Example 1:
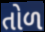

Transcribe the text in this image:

તોળ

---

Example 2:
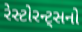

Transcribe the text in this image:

રેસ્ટોરન્ટ્સનો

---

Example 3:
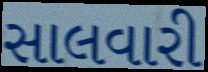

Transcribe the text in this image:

સાલવારી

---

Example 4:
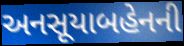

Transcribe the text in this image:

અનસૂયાબહેનની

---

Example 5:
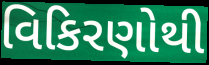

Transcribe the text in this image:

વિકિરણોથી